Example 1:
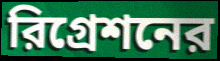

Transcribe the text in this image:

রিগ্রেশনের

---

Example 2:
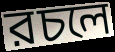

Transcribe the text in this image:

রচলে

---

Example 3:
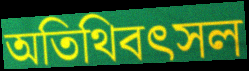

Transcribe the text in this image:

অতিথিবৎসল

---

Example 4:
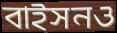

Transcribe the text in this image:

বাইসনও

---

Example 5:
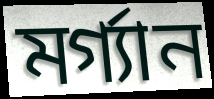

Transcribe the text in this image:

মর্গ্যান